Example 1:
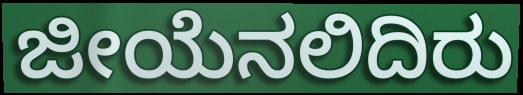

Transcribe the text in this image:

ಜೀಯೆನಲಿದಿರು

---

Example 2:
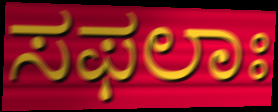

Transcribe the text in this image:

ಸಫಲಾಃ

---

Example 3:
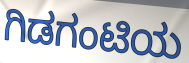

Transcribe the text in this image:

ಗಿಡಗಂಟಿಯ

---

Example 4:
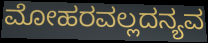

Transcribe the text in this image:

ಮೋಹರವಲ್ಲದನ್ಯವ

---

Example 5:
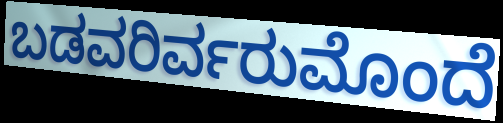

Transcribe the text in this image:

ಬಡವರಿರ್ವರುಮೊಂದೆ